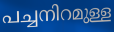
പച്ചനിറമുള്ള